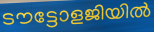
ടൗട്ടോളജിയിൽ